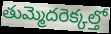
తుమ్మెదరెక్కల్తో